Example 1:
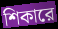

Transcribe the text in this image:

শিকারে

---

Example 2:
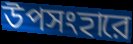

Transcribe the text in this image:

উপসংহারে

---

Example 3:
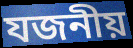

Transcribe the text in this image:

যজনীয়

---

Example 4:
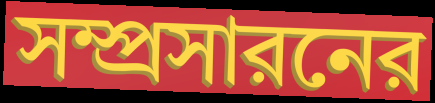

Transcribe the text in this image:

সম্প্রসারনের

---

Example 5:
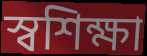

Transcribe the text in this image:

স্বশিক্ষা